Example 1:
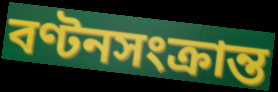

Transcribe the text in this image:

বণ্টনসংক্রান্ত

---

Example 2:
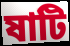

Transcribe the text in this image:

ষাটি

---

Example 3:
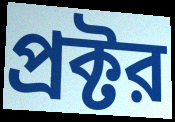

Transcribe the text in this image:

প্রক্টর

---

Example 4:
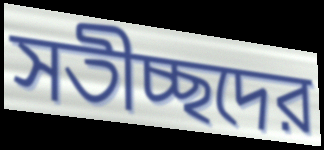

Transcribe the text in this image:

সতীচ্ছদের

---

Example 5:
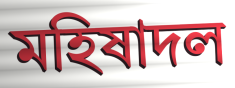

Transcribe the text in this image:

মহিষাদল